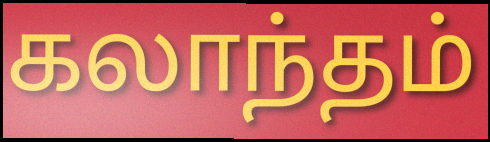
கலாந்தம்